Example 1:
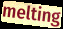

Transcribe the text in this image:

melting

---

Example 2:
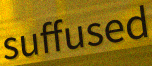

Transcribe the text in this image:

suffused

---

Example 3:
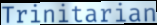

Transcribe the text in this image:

Trinitarian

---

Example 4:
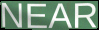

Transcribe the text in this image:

NEAR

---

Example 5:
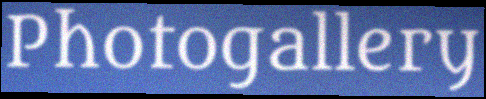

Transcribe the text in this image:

Photogallery